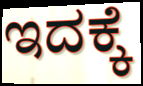
ಇದಕ್ಕೆ